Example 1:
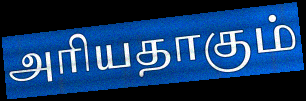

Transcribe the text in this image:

அரியதாகும்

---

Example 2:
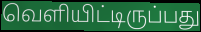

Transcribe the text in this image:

வெளியிட்டிருப்பது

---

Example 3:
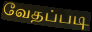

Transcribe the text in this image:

வேதப்படி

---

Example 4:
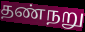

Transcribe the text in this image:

தண்நறு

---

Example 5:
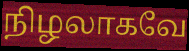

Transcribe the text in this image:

நிழலாகவே